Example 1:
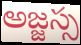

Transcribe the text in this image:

అజ్జస్స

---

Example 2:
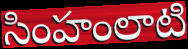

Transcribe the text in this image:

సింహంలాటి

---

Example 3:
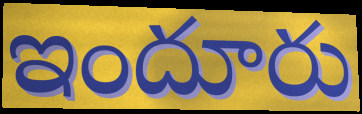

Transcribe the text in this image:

ఇందూరు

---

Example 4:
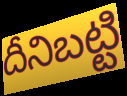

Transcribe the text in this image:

దీనిబట్టి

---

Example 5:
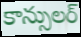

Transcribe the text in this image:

కాన్సులర్